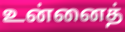
உன்னைத்